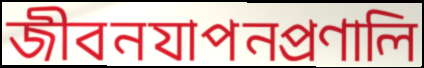
জীবনযাপনপ্রণালি